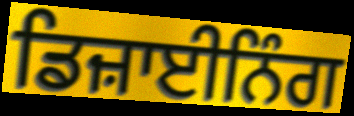
ਡਿਜ਼ਾਈਨਿੰਗ